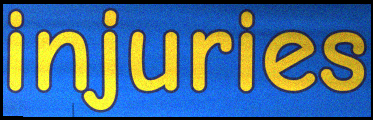
injuries